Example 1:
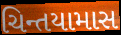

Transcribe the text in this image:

ચિન્તયામાસ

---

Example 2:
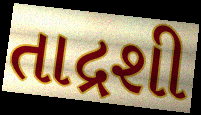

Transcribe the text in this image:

તાદ્રશી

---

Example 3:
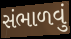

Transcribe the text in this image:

સંભાળવું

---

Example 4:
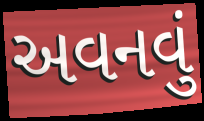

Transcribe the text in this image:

અવનવું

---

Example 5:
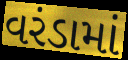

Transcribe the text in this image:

વરંડામાં